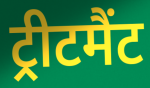
ट्रीटमैंट